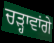
ਚੜ੍ਹਾਵਾਂਗੇ